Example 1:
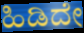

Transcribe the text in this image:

ಹಿಡಿದೇ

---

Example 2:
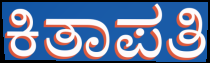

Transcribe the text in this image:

ಕಿತಾಪತಿ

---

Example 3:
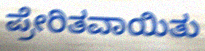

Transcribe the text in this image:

ಪ್ರೇರಿತವಾಯಿತು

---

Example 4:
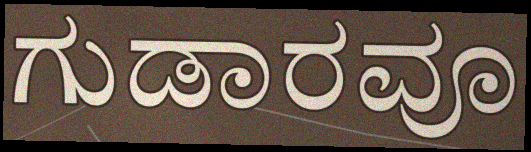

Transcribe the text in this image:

ಗುಡಾರವೂ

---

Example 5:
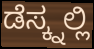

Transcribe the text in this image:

ಡೆಸ್ಕ್ನಲ್ಲಿ